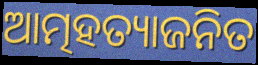
ଆତ୍ମହତ୍ୟାଜନିତ